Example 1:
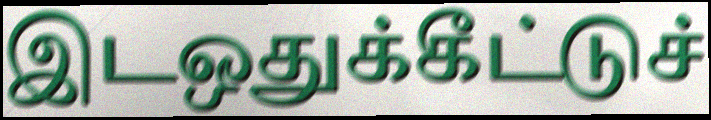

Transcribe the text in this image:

இடஒதுக்கீட்டுச்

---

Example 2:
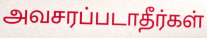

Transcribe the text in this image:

அவசரப்படாதீர்கள்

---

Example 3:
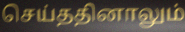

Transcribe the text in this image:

செய்ததினாலும்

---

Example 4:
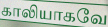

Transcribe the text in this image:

காலியாகவே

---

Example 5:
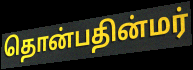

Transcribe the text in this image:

தொன்பதின்மர்